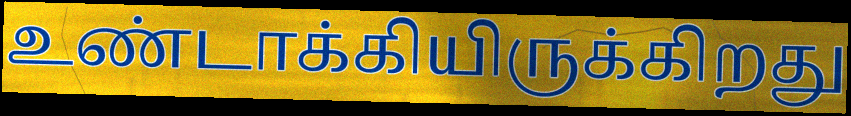
உண்டாக்கியிருக்கிறது